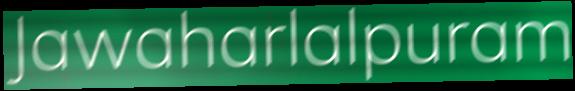
Jawaharlalpuram